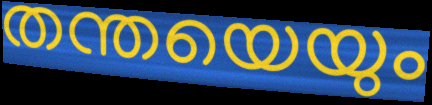
തന്തയെയും